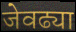
जेवढ्या